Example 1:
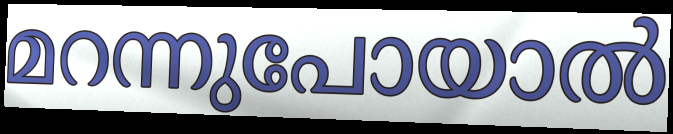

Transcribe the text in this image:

മറന്നുപോയാൽ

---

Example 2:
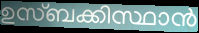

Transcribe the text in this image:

ഉസ്ബക്കിസ്ഥാൻ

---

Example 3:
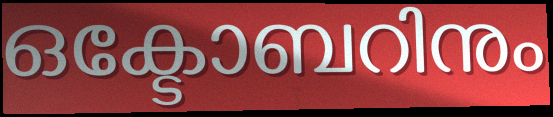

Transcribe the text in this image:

ഒക്ടോബറിനും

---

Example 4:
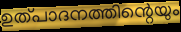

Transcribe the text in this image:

ഉത്പാദനത്തിന്റെയും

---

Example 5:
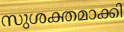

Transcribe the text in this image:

സുശക്തമാക്കി